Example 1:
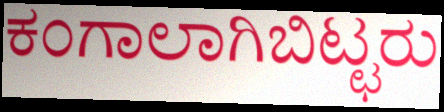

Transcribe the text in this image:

ಕಂಗಾಲಾಗಿಬಿಟ್ಟರು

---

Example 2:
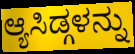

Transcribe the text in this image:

ಆ್ಯಸಿಡ್ಗಳನ್ನು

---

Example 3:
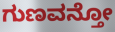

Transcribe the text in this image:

ಗುಣವನ್ತೋ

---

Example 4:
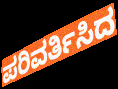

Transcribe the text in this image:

ಪರಿವರ್ತಿಸಿದ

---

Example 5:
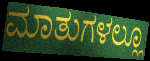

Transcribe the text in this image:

ಮಾತುಗಳಲ್ಲೂ